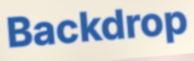
Backdrop